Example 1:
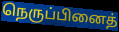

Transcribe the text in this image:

நெருப்பினைத்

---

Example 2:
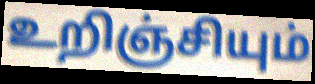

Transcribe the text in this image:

உறிஞ்சியும்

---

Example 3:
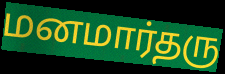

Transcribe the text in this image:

மனமார்தரு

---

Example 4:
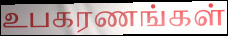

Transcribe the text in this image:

உபகரணங்கள்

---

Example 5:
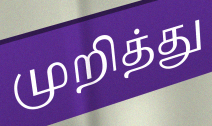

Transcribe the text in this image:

முறித்து